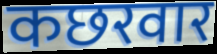
कछरवार